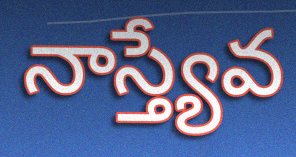
నాస్త్యేవ